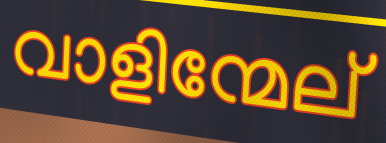
വാളിന്മേല്